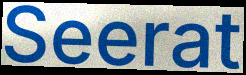
Seerat